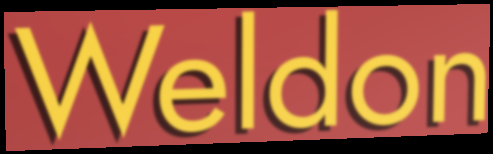
Weldon